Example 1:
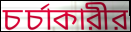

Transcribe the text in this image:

চর্চাকারীর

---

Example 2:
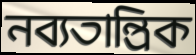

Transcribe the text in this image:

নব্যতান্ত্রিক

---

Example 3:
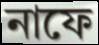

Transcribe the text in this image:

নাফে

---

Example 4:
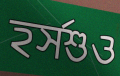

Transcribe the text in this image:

হর্সশুও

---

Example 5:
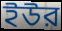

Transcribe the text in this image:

ইউর